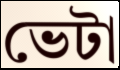
ভেটা